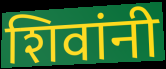
शिवांनी